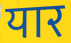
यार